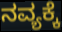
ನವ್ಯಕ್ಕೆ